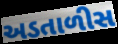
અડતાળીસ